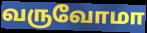
வருவோமா